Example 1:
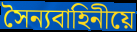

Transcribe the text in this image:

সৈন্যবাহিনীয়ে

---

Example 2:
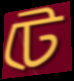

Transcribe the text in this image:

টে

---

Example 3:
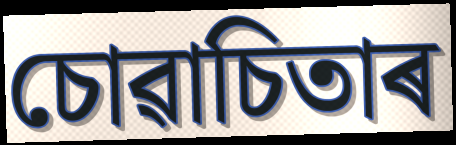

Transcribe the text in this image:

চোৱাচিতাৰ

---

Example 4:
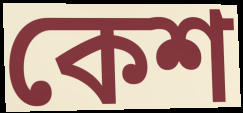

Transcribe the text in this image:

কেশ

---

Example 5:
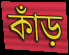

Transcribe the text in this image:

কাঁড়